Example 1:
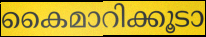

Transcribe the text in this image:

കൈമാറിക്കൂടാ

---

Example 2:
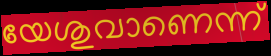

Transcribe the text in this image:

യേശുവാണെന്ന്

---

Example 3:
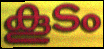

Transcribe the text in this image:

കൂടം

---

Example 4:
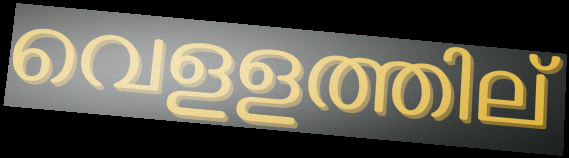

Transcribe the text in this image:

വെളളത്തില്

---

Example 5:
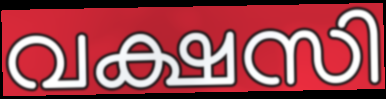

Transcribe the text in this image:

വക്ഷസി